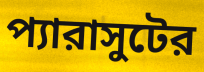
প্যারাসুটের